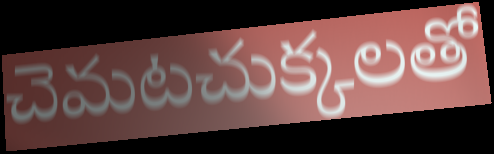
చెమటచుక్కలతో